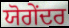
ਯੋਗੇਂਦਰ